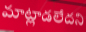
మాట్లాడలేదని